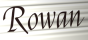
Rowan